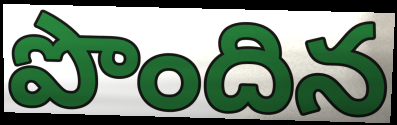
పొందిన